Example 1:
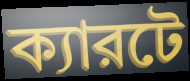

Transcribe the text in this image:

ক্যারটে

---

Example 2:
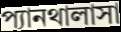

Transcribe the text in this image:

প্যানথালাসা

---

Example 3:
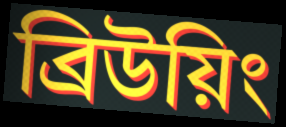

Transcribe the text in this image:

ব্রিউয়িং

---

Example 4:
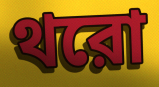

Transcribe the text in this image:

থরো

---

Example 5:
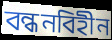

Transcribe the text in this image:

বন্ধনবিহীন